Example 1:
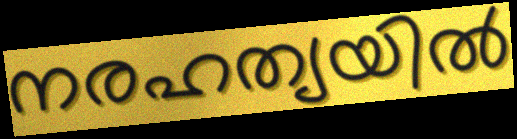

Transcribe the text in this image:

നരഹത്യയിൽ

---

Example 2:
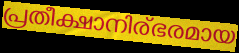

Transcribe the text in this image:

പ്രതീക്ഷാനിര്ഭരമായ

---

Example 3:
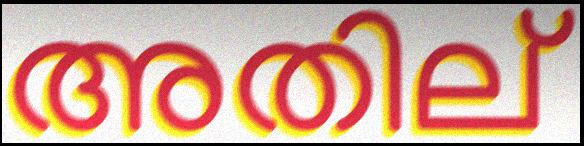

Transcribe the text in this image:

അതില്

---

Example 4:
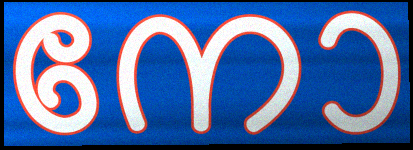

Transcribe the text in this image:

നോ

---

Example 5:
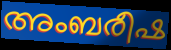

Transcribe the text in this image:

അംബരീഷ